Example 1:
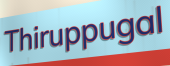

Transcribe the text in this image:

Thiruppugal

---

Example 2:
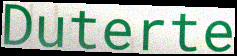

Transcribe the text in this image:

Duterte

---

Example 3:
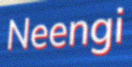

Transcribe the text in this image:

Neengi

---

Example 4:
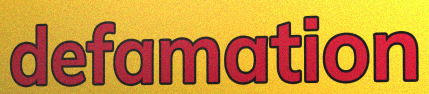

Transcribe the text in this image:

defamation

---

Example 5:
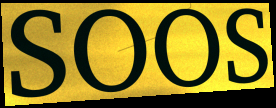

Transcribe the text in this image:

SOOS